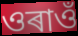
ওৰাওঁ